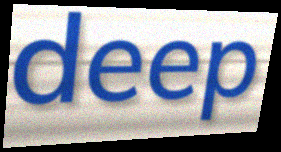
deep